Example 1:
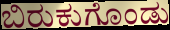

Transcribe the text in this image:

ಬಿರುಕುಗೊಂಡು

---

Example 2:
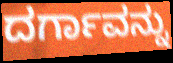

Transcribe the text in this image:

ದರ್ಗಾವನ್ನು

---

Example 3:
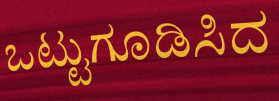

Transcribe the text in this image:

ಒಟ್ಟುಗೂಡಿಸಿದ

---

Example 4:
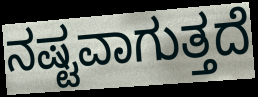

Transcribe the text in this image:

ನಷ್ಟವಾಗುತ್ತದೆ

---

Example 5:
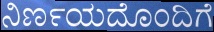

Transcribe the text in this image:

ನಿರ್ಣಯದೊಂದಿಗೆ